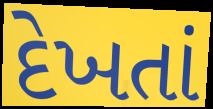
દેખતાં